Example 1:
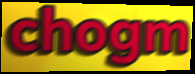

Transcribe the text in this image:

chogm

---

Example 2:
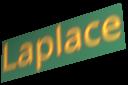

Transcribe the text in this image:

Laplace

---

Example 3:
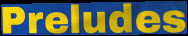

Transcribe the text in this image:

Preludes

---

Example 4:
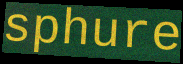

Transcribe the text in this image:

sphure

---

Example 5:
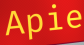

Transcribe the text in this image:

Apie